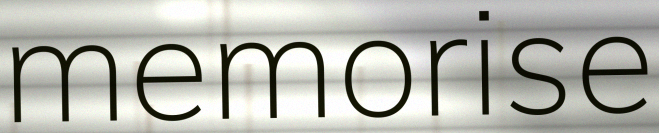
memorise